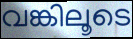
വങ്കിലൂടെ